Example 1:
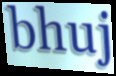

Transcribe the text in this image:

bhuj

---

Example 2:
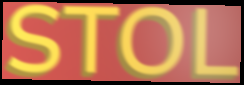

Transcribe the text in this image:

STOL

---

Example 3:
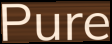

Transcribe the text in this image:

Pure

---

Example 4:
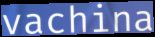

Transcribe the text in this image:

vachina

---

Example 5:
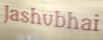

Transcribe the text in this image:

Jashubhai